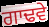
ਗਾਢਵੇ